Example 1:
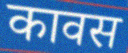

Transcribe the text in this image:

कावस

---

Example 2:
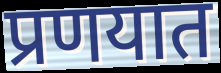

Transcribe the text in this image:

प्रणयात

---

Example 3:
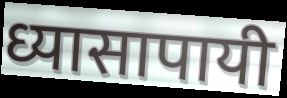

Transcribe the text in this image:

ध्यासापायी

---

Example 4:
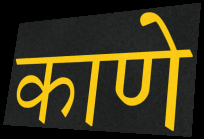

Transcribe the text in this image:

काणे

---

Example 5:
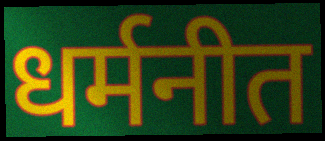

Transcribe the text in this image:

धर्मनीत